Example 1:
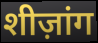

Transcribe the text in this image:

शीज़ांग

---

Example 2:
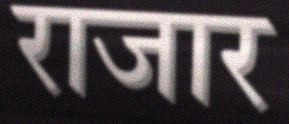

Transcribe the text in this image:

राजार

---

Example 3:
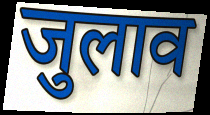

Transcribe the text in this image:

जुलाव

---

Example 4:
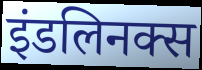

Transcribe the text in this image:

इंडलिनक्स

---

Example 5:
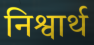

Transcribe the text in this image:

निश्वार्थ